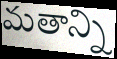
మతాన్ని